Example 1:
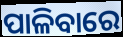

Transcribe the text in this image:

ପାଳିବାରେ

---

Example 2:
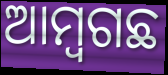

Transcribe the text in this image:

ଆମ୍ୱଗଛ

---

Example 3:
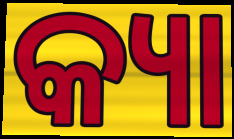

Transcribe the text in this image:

କ୍ୟା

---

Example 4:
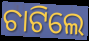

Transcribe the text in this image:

ଚାଟିଲେ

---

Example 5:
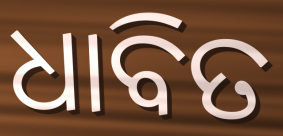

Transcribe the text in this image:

ଧାବିତ